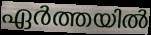
ഏർത്തയിൽ